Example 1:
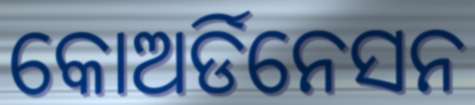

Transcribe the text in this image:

କୋଅର୍ଡିନେସନ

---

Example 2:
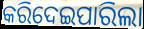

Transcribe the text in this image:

କରିଦେଇପାରିଲା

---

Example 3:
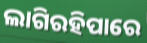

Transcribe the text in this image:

ଲାଗିରହିପାରେ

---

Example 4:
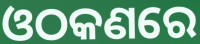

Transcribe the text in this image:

ଓଠକଣରେ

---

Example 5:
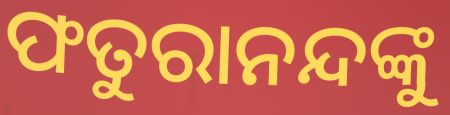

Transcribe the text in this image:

ଫତୁରାନନ୍ଦଙ୍କୁ